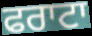
ਫਰਾਟਾ